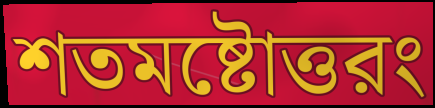
শতমষ্টোত্তরং